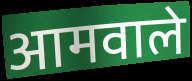
आमवाले